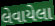
લેવાયેલા